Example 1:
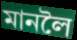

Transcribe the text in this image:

মানলৈ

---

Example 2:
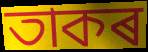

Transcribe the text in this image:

তাকৰ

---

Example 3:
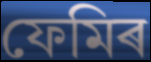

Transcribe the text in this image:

ফেমিৰ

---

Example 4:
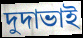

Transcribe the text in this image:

দুদাভাই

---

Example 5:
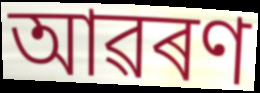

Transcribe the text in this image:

আৱৰণ